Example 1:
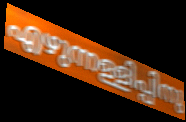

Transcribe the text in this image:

എഴുന്നള്ളിപ്പിനു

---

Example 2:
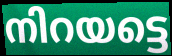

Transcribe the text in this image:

നിറയട്ടെ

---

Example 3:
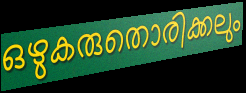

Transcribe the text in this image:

ഒഴുകരുതൊരിക്കലും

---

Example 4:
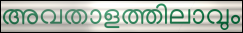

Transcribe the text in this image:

അവതാളത്തിലാവും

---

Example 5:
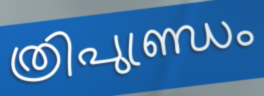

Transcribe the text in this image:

ത്രിപുണ്ഡ്രം